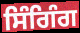
ਸਿੰਗਿੰਗ